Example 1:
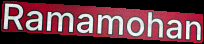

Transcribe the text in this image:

Ramamohan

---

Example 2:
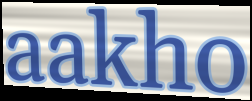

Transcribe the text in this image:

aakho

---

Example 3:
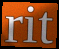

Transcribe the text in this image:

rit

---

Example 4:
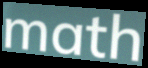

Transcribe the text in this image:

math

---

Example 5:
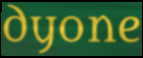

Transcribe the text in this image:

dyone